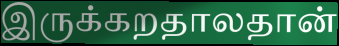
இருக்கறதாலதான்